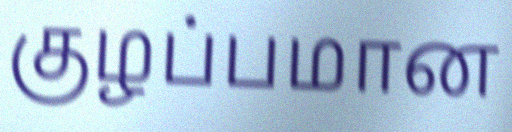
குழப்பமான